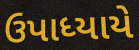
ઉપાધ્યાયે